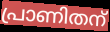
പ്രാണിതന്